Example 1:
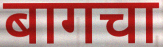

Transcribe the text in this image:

बागचा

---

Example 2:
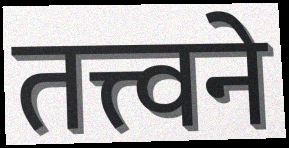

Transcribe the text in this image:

तत्त्वने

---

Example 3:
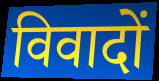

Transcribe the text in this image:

विवादों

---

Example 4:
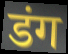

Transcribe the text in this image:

डंग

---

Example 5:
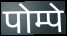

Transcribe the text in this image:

पोम्पे